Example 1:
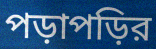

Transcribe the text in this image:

পড়াপড়ির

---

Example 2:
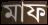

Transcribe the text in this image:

মাফ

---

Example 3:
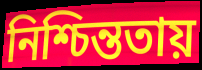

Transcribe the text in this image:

নিশ্চিন্ততায়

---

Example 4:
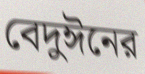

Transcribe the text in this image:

বেদুঈনের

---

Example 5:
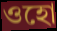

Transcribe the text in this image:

ওহো